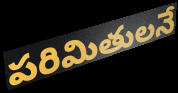
పరిమితులనే